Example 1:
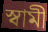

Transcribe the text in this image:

স্বামী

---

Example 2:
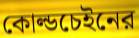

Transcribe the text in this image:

কোল্ডচেইনের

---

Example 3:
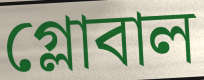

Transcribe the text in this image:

গ্লোবাল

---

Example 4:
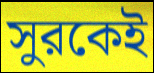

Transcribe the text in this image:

সুরকেই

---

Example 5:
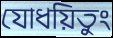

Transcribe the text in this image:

যোধয়িতুং